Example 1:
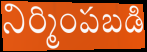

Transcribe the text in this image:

నిర్మింపబడి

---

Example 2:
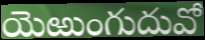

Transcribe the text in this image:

యెఱుంగుదువో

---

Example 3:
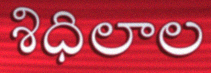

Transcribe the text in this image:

శిధిలాల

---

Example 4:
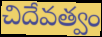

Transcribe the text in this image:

చిదేవత్వం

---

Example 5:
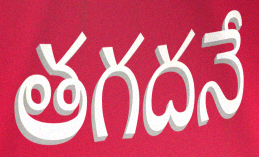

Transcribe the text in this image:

తగదనే